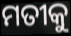
ମତୀକୁ